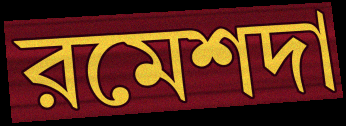
রমেশদা